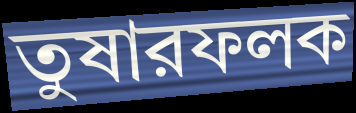
তুষারফলক